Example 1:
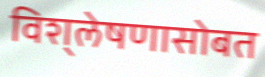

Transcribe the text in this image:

विश्लेषणासोबत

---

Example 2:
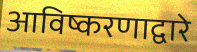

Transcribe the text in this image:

आविष्करणाद्वारे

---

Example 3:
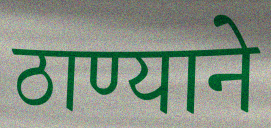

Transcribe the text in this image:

ठाण्याने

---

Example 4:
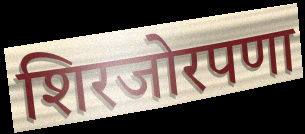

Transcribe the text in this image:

शिरजोरपणा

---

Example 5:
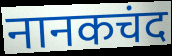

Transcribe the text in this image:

नानकचंद